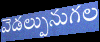
వెడల్పునుగల